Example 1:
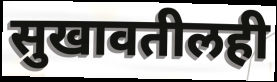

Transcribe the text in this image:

सुखावतीलही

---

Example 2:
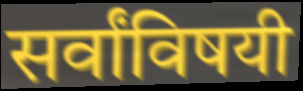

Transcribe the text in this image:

सर्वांविषयी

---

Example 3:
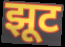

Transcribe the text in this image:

झूट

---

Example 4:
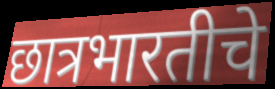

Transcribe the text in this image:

छात्रभारतीचे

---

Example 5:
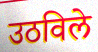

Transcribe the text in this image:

उठविले